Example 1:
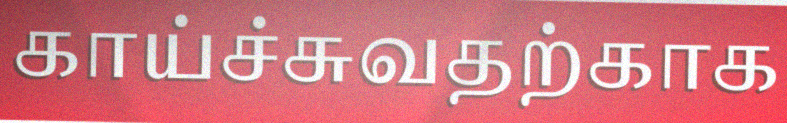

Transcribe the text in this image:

காய்ச்சுவதற்காக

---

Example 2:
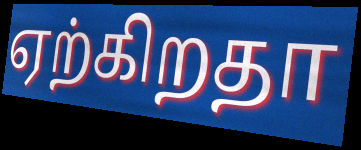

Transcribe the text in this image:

ஏற்கிறதா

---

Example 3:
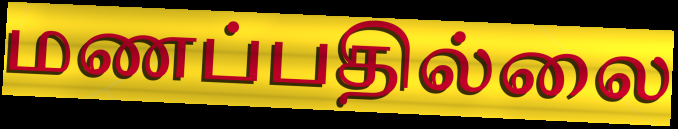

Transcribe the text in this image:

மணப்பதில்லை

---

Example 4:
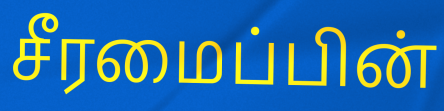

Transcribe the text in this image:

சீரமைப்பின்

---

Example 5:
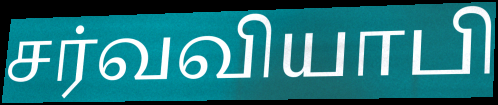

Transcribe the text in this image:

சர்வவியாபி